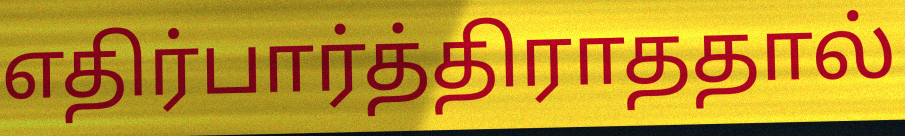
எதிர்பார்த்திராததால்